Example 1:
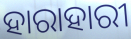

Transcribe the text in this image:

ହାରାହାରୀ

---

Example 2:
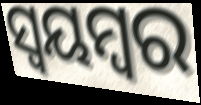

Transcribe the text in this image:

ସ୍ଵୟମ୍ବର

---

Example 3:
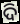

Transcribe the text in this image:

ଦି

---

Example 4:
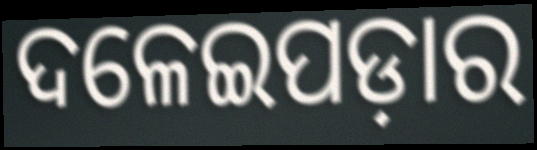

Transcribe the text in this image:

ଦଳେଇପଡ଼ାର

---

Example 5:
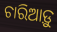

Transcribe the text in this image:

ଚାରିଆଡ଼ୁ